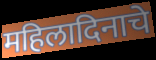
महिलादिनाचे